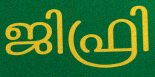
ജിഫ്രി